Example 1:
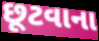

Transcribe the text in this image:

છૂટવાના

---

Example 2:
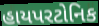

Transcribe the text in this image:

હાયપરટોનિક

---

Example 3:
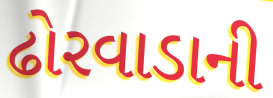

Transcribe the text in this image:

ઢોરવાડાની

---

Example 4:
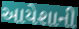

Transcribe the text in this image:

આયેશાની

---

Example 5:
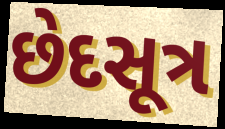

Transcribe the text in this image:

છેદસૂત્ર